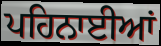
ਪਹਿਨਾਈਆਂ